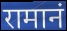
रामानं